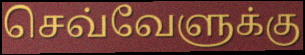
செவ்வேளுக்கு